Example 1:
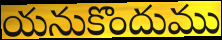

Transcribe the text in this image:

యనుకొందుము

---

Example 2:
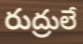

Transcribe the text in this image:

రుద్రులే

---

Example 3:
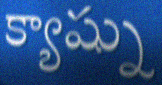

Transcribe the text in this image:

క్యాష్ను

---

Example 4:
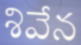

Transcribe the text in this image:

శివేన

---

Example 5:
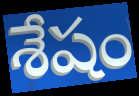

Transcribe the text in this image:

శేషం